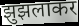
झुझलाकर